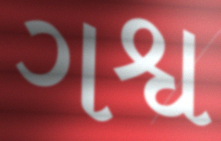
ગશ્વ